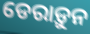
ଡେରାଡ଼ୁନ